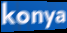
konya